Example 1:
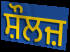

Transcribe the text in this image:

ਸ਼ੌਲਜ਼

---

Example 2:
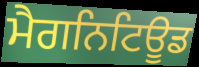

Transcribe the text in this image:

ਮੈਗਨਿਟਿਊਡ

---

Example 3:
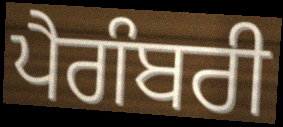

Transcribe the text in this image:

ਪੈਗੰਬਰੀ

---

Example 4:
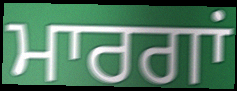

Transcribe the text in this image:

ਮਾਰਗਾਂ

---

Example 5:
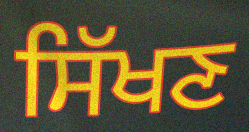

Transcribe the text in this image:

ਸਿੱਖਣ